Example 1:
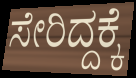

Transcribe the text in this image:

ಸೇರಿದ್ದಕ್ಕೆ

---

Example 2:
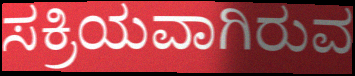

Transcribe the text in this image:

ಸಕ್ರಿಯವಾಗಿರುವ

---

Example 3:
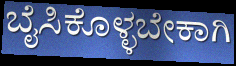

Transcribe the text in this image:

ಬೈಸಿಕೊಳ್ಳಬೇಕಾಗಿ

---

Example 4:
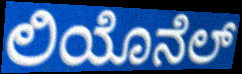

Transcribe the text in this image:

ಲಿಯೊನೆಲ್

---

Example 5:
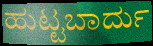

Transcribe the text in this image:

ಹುಟ್ಟಬಾರ್ದು